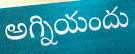
అగ్నియందు